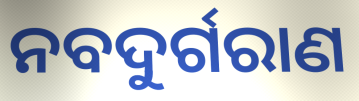
ନବଦୁର୍ଗରାଣ